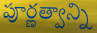
పూర్ణత్వాన్ని